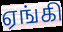
ஏங்கி